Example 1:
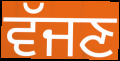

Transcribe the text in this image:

ਵੱਜਣ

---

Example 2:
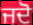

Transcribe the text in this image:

ਜਦੋ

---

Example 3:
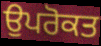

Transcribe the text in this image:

ਉਪਰੋਕਤ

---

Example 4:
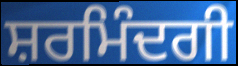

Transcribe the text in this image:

ਸ਼ਰਮਿੰਦਗੀ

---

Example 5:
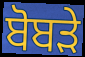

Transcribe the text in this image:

ਬੋਬੜੇ